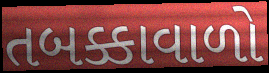
તબક્કાવાળો